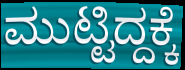
ಮುಟ್ಟಿದ್ದಕ್ಕೆ